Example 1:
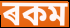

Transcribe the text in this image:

ৰকম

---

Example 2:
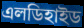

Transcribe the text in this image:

এলডিহাইড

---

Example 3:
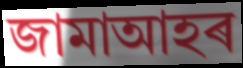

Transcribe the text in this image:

জামাআহৰ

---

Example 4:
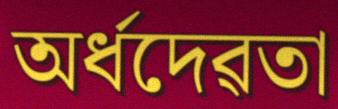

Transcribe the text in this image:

অৰ্ধদেৱতা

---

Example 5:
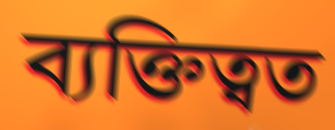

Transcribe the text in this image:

ব্যক্তিত্বত